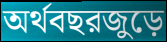
অর্থবছরজুড়ে